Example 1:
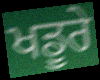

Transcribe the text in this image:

ਖਡੂਰੇ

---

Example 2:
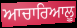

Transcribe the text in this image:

ਆਚਾਰਿਆਲੂ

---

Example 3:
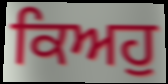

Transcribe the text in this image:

ਕਿਅਹੁ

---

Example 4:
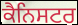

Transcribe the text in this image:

ਕੈਨਿਸਟਰ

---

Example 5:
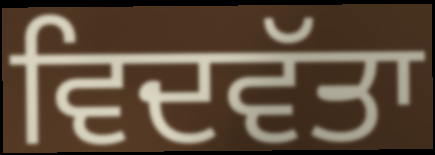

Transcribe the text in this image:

ਵਿਦਵੱਤਾ